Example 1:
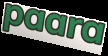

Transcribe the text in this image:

paara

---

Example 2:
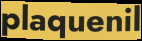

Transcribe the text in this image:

plaquenil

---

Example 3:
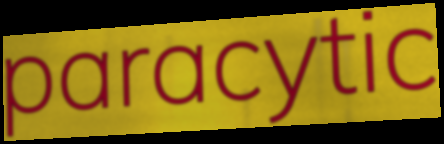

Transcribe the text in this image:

paracytic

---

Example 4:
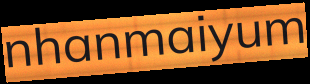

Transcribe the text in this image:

nhanmaiyum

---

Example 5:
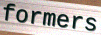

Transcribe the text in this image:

formers